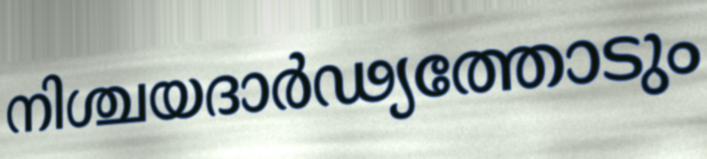
നിശ്ചയദാർഢ്യത്തോടും